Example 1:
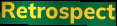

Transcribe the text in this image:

Retrospect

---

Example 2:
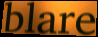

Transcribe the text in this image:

blare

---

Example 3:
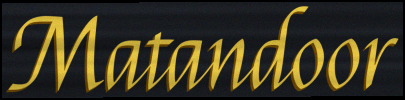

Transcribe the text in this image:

Matandoor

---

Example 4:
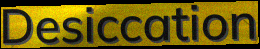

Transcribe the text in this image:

Desiccation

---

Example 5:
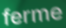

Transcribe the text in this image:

ferme